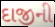
દાજીની